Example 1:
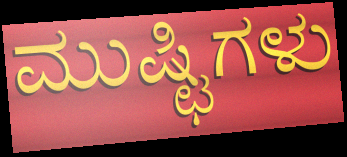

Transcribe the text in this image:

ಮುಷ್ಟಿಗಳು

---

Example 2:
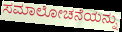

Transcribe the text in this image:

ಸಮಾಲೋಚನೆಯನ್ನು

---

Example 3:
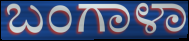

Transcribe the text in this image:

ಬಂಗಾಳಾ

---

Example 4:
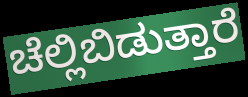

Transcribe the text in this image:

ಚೆಲ್ಲಿಬಿಡುತ್ತಾರೆ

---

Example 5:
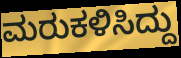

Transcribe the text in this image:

ಮರುಕಳಿಸಿದ್ದು